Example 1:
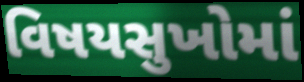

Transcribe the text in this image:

વિષયસુખોમાં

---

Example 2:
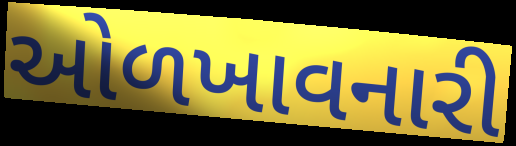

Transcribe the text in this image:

ઓળખાવનારી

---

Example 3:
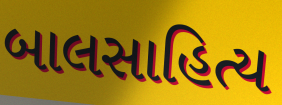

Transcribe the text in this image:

બાલસાહિત્ય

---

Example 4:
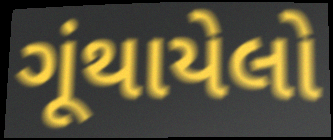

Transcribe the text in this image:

ગૂંથાયેલો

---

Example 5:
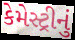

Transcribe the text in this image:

કેમેસ્ટ્રીનું